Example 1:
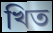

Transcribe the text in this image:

খিত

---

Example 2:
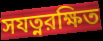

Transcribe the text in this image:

সযত্নরক্ষিত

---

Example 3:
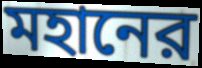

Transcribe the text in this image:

মহানের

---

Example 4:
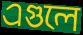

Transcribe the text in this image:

এগুলে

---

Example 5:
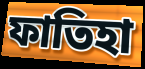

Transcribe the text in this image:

ফাতিহা